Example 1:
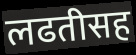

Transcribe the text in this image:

लढतीसह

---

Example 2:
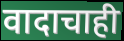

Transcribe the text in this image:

वादाचाही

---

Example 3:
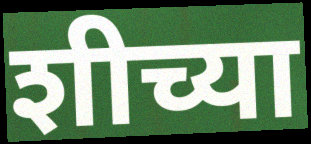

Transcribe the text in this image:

शीच्या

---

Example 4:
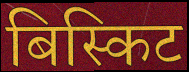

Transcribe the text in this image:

बिस्किट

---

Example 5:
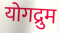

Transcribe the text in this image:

योगद्रुम